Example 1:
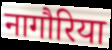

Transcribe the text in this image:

नागौरिया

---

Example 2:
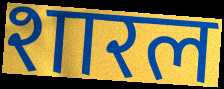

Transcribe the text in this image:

शारल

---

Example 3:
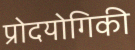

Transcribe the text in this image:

प्रोदयोगिकी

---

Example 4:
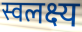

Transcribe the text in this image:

स्वलक्ष्य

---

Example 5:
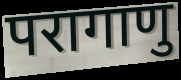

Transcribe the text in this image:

परागाणु